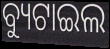
ବ୍ୟୁଟାଇଲ